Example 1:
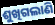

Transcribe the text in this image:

ଶୁଖିଗଲାଣି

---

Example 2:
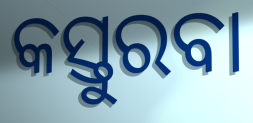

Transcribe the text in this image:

କସ୍ତୁରବା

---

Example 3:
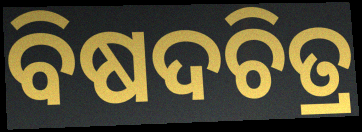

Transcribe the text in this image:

ବିଷଦଚିତ୍ର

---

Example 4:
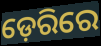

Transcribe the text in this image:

ଡ଼େରିରେ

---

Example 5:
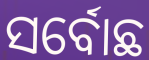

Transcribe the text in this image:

ସର୍ବୋଛ